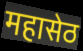
महासेठ